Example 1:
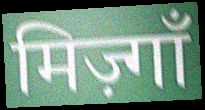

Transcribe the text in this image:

मिज़्गाँ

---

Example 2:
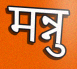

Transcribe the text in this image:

मन्नु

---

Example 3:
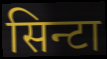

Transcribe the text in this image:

सिन्टा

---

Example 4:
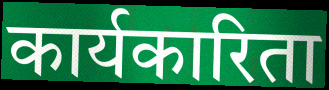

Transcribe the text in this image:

कार्यकारिता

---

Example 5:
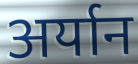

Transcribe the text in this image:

अर्यान